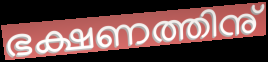
ഭക്ഷണത്തിനു്